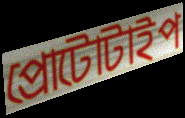
প্রোটোটাইপ